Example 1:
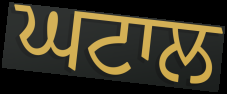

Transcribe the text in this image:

ਘਟਾਲ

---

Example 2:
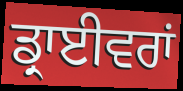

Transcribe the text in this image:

ਡ੍ਰਾਈਵਰਾਂ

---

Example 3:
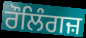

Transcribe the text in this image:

ਰੌਲਿੰਗਜ਼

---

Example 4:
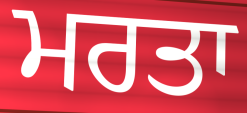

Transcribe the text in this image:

ਮਰਤਾ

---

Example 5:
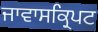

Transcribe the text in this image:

ਜਾਵਾਸਕ੍ਰਿਪਟ